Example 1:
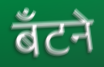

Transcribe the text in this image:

बँटने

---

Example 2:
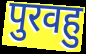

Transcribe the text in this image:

पुरवहु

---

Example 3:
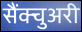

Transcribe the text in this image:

सैंक्चुअरी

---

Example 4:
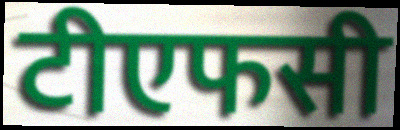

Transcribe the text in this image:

टीएफसी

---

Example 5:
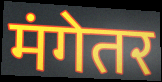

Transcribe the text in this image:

मंगेतर